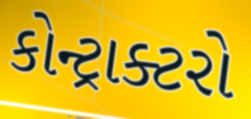
કોન્ટ્રાક્ટરો